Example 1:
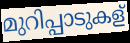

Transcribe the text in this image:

മുറിപ്പാടുകള്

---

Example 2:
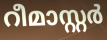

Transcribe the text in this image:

റീമാസ്റ്റർ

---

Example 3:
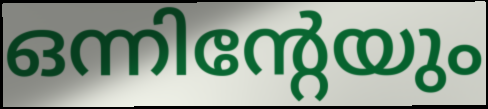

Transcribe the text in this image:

ഒന്നിന്റേയും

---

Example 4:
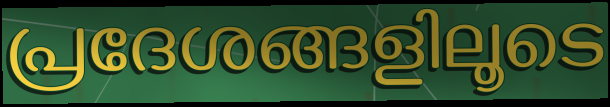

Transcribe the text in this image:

പ്രദേശങ്ങളിലൂടെ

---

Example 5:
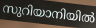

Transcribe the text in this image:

സുറിയാനിയിൽ